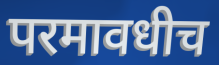
परमावधीच